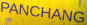
PANCHANG